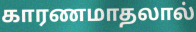
காரணமாதலால்